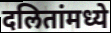
दलितांमध्ये